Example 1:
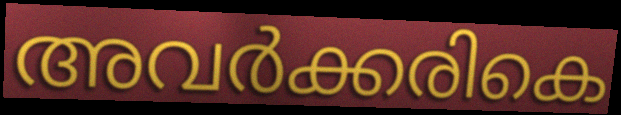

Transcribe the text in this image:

അവർക്കരികെ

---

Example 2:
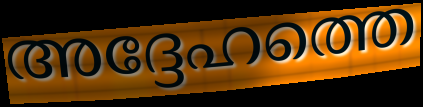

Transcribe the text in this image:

അദ്ദേഹത്തെ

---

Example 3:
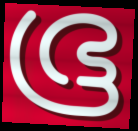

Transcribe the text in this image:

ഭൂ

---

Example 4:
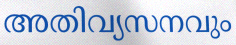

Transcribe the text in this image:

അതിവ്യസനവും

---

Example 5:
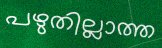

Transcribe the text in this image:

പഴുതില്ലാത്ത